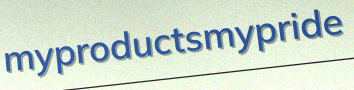
myproductsmypride